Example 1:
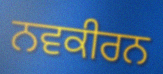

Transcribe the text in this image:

ਨਵਕੀਰਨ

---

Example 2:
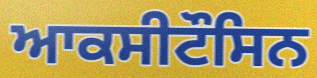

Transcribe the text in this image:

ਆਕਸੀਟੌਸਿਨ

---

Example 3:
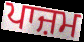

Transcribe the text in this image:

ਪਾਜ਼ਮ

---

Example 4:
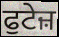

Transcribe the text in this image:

ਫੁਟੇਜ਼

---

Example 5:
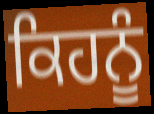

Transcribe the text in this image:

ਕਿਹਨੂੰ